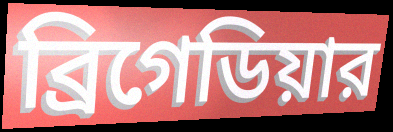
ব্রিগেডিয়ার